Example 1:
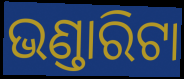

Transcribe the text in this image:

ଭଣ୍ଡାରିଟା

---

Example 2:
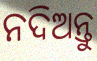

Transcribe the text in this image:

ନଦିଅନ୍ତୁ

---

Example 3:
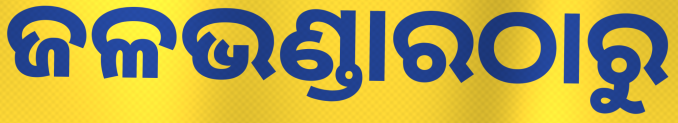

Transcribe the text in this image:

ଜଳଭଣ୍ଡାରଠାରୁ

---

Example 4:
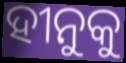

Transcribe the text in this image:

ହୀନୁକୁ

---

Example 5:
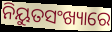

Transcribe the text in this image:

ନିୟୁତସଂଖ୍ୟାରେ